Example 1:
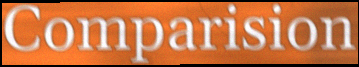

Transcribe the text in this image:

Comparision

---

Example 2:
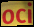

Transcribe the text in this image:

oci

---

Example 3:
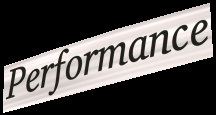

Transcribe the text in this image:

Performance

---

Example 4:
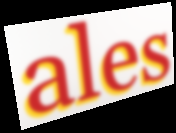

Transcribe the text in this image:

ales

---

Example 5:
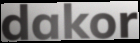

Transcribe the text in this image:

dakor